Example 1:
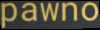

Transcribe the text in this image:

pawno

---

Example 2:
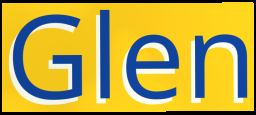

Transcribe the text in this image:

Glen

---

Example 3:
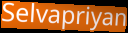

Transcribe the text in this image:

Selvapriyan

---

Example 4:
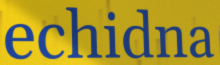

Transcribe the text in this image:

echidna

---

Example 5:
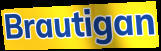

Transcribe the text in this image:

Brautigan